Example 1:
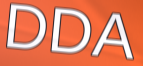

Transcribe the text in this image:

DDA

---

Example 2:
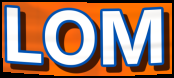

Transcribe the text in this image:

LOM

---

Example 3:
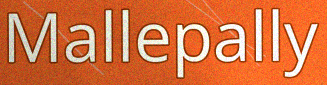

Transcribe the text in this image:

Mallepally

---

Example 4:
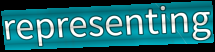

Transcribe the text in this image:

representing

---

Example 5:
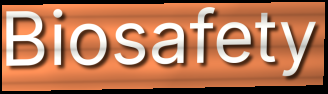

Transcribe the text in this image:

Biosafety